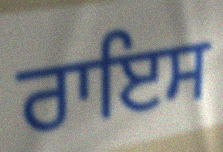
ਰਾਇਸ